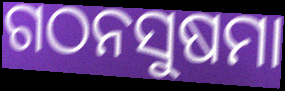
ଗଠନସୁଷମା